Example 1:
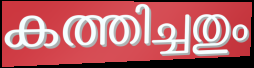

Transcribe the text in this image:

കത്തിച്ചതും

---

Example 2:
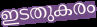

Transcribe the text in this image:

ഇടതുകരം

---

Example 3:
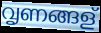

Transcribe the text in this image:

വൃണങ്ങള്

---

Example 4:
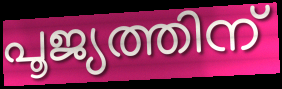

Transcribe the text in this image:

പൂജ്യത്തിന്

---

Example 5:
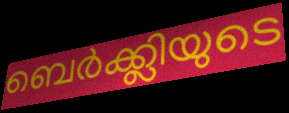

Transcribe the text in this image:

ബെർക്ക്ലിയുടെ